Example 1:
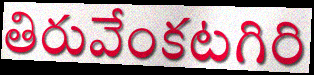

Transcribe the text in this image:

తిరువేంకటగిరి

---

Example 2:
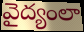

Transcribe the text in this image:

వైద్యంలా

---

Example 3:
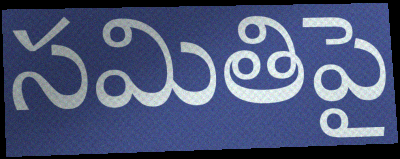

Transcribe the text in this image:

సమితిపై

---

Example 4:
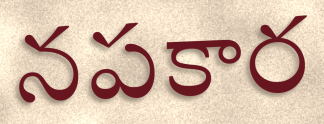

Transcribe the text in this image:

నపకార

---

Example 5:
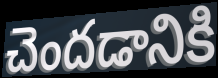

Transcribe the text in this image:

చెందడానికి